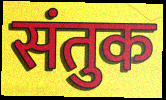
संतुक